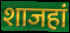
शाजहां